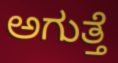
ಅಗುತ್ತೆ